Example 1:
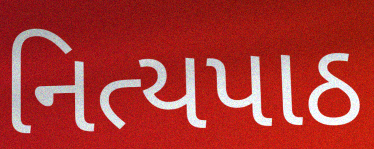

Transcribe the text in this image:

નિત્યપાઠ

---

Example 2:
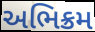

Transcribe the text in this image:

અભિક્રમ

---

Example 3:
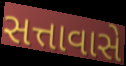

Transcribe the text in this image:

સત્તાવાસે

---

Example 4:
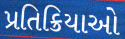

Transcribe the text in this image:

પ્રતિક્રિયાઓ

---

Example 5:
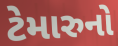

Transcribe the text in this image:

ટેમારુનો